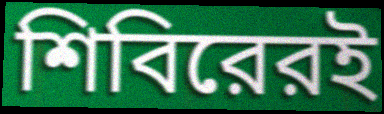
শিবিরেরই